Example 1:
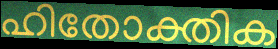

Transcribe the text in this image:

ഹിതോക്തിക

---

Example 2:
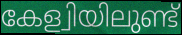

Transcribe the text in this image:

കേള്വിയിലുണ്ട്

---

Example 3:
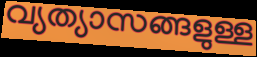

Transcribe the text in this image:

വ്യത്യാസങ്ങളുള്ള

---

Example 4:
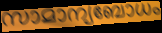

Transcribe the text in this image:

സാമാന്യബോധം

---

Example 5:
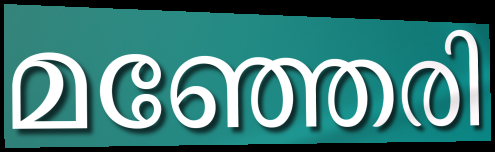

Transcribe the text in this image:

മഞ്ഞേരി